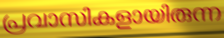
പ്രവാസികളായിരുന്ന